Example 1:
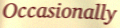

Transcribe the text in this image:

Occasionally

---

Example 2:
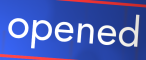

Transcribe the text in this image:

opened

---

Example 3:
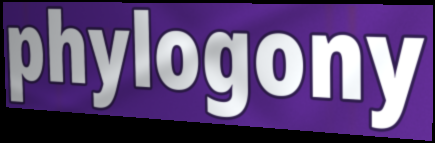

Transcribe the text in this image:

phylogony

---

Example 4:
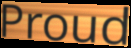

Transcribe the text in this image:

Proud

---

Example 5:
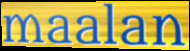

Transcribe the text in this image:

maalan